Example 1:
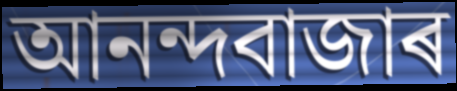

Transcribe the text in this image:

আনন্দবাজাৰ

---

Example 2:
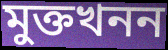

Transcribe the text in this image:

মুক্তখনন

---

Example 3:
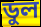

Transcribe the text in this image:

ডুল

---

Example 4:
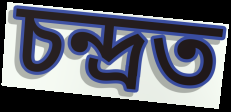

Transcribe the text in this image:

চন্দ্ৰত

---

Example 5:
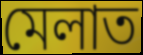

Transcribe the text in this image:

মেলাত